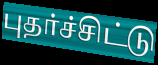
புதர்ச்சிட்டு